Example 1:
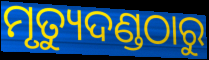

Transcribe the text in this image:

ମୃତ୍ୟୁଦଣ୍ଡଠାରୁ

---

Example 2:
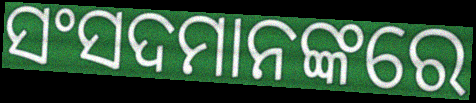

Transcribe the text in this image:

ସଂସଦମାନଙ୍କରେ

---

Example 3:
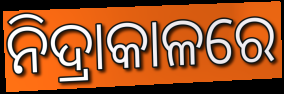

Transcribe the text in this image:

ନିଦ୍ରାକାଳରେ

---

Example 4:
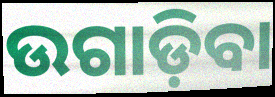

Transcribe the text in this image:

ଉଗାଡ଼ିବା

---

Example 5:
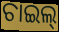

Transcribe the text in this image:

ଚାଇଲ୍